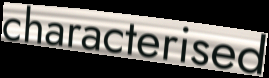
characterised